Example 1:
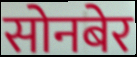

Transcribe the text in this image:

सोनबेर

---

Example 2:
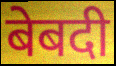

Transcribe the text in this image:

बेबदी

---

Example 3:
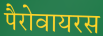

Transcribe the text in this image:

पैरोवायरस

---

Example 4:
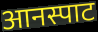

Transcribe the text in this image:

आनस्पाट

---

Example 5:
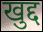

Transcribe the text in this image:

खुद्द